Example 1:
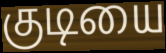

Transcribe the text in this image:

குடியை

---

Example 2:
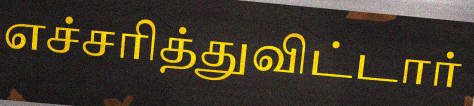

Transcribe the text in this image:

எச்சரித்துவிட்டார்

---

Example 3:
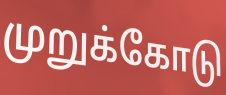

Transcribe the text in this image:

முறுக்கோடு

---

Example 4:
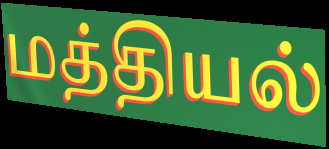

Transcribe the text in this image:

மத்தியல்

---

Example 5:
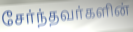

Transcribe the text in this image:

சேர்ந்தவர்களின்